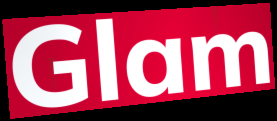
Glam